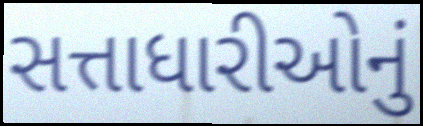
સત્તાધારીઓનું